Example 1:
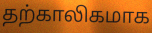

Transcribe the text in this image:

தற்காலிகமாக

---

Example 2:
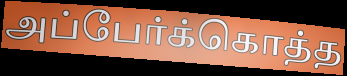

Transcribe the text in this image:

அப்பேர்க்கொத்த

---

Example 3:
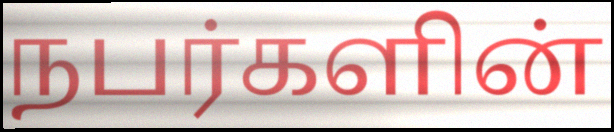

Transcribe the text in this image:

நபர்களின்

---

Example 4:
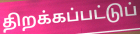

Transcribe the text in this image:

திறக்கப்பட்டுப்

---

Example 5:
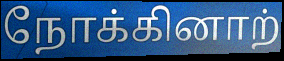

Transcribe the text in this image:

நோக்கினாற்